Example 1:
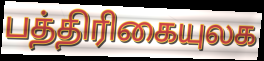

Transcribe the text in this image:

பத்திரிகையுலக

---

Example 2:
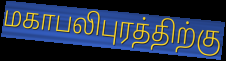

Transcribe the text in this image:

மகாபலிபுரத்திற்கு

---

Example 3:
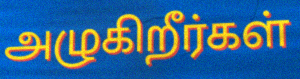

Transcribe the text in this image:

அழுகிறீர்கள்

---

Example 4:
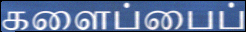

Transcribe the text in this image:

களைப்பைப்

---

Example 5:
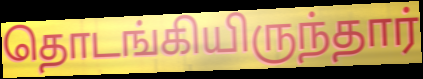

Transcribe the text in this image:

தொடங்கியிருந்தார்